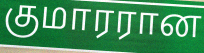
குமாரரான